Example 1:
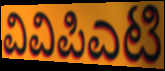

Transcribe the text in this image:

ವಿವಿಪಿಎಟಿ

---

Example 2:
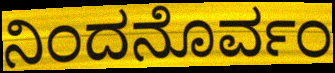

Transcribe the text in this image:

ನಿಂದನೊರ್ವಂ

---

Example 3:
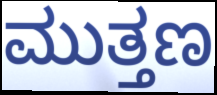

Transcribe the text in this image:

ಮುತ್ತಣ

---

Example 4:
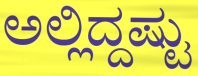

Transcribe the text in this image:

ಅಲ್ಲಿದ್ದಷ್ಟು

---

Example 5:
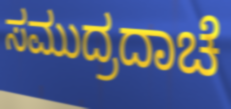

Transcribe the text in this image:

ಸಮುದ್ರದಾಚೆ